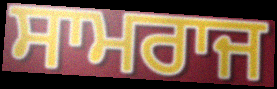
ਸਾਮਰਾਜ